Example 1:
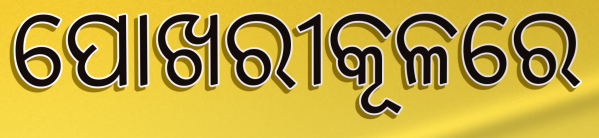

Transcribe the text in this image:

ପୋଖରୀକୂଳରେ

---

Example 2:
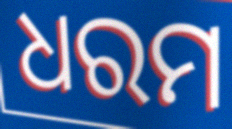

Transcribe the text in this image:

ଧରମ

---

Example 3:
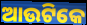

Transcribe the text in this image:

ଆଉଟିକେ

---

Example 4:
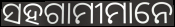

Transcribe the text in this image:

ସହଗାମୀମାନେ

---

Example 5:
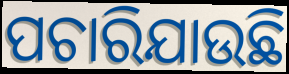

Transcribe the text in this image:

ପଚାରିଯାଉଛି